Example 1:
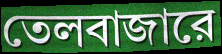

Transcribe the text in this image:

তেলবাজারে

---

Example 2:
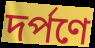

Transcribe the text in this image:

দর্পণে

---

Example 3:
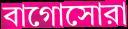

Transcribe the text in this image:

বাগোসোরা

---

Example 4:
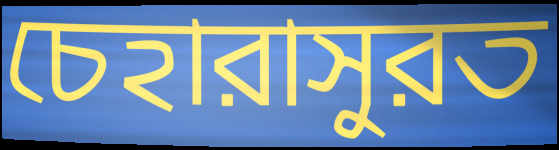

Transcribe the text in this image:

চেহারাসুরত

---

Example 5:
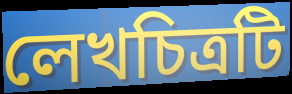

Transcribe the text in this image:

লেখচিত্রটি